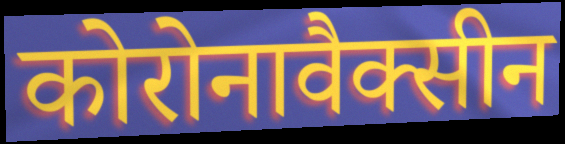
कोरोनावैक्सीन